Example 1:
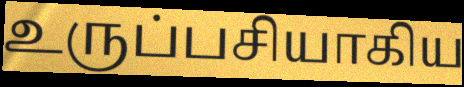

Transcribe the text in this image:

உருப்பசியாகிய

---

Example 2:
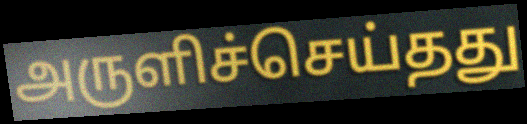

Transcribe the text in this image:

அருளிச்செய்தது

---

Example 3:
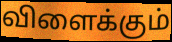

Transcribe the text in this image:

விளைக்கும்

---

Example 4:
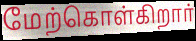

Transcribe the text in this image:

மேற்கொள்கிறார்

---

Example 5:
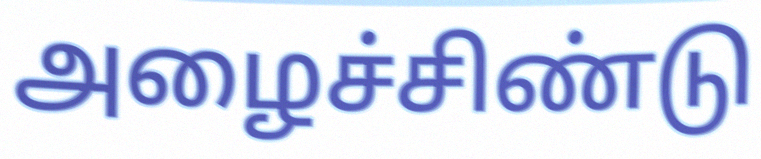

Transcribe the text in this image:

அழைச்சிண்டு